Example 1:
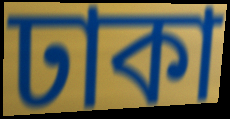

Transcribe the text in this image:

ঢাকা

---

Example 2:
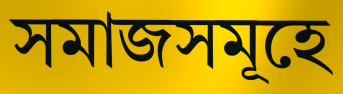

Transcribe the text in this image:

সমাজসমূহে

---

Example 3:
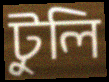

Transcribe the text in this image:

টুলি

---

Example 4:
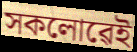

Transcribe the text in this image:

সকলোৱেই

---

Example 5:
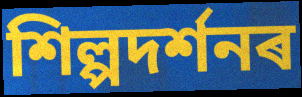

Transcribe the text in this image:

শিল্পদৰ্শনৰ